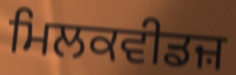
ਮਿਲਕਵੀਡਜ਼